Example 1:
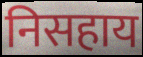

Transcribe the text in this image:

निसहाय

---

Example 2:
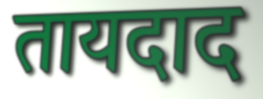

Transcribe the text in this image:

तायदाद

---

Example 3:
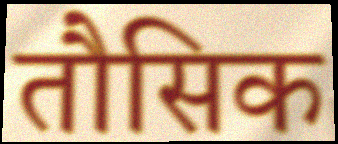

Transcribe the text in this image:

तौसिक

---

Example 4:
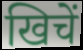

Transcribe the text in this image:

खिचें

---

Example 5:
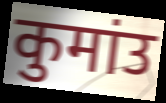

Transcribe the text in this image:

कुमांउ